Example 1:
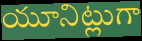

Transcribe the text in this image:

యూనిట్లుగా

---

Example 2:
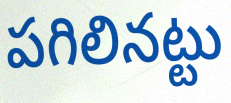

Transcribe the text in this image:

పగిలినట్టు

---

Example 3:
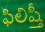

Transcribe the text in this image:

ఫిలిష్తీ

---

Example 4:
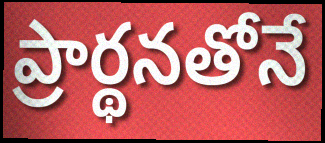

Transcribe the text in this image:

ప్రార్థనతోనే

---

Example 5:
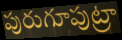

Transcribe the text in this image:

పురుగూపుట్రా